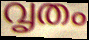
വൃതം